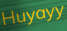
Huyayy